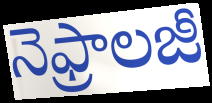
నెఫ్రాలజీ